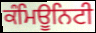
ਕੰਮਿਊਨਿਟੀ